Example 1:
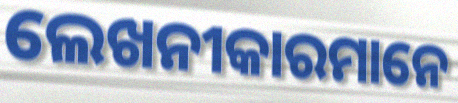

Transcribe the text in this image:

ଲେଖନୀକାରମାନେ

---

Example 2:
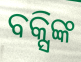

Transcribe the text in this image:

ବକ୍ସିଙ୍କ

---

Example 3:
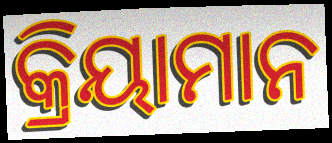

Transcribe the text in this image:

କ୍ରିୟାମାନ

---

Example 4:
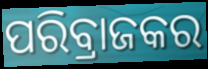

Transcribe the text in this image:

ପରିବ୍ରାଜକର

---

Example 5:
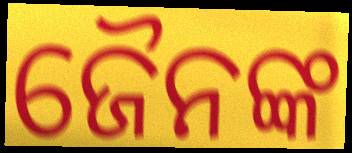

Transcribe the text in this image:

ଜୈନଙ୍କ